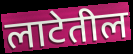
लाटेतील